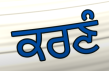
ਕਰਣੰ